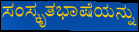
ಸಂಸ್ಕೃತಭಾಷೆಯನ್ನು